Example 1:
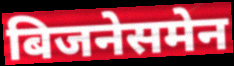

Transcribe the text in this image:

बिजनेसमेन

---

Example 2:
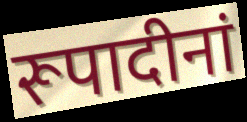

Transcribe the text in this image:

रूपादीनां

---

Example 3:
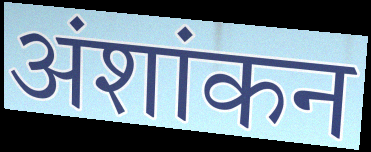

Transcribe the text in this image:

अंशांकन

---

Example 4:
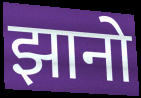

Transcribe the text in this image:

झानो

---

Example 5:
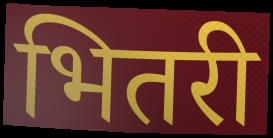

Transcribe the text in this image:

भितरी